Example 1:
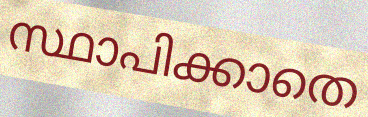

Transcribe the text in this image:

സ്ഥാപിക്കാതെ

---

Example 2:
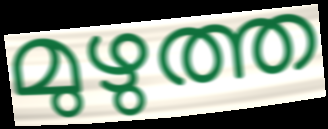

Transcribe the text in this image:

മുഴുത്ത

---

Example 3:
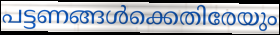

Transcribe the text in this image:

പട്ടണങ്ങൾക്കെതിരേയും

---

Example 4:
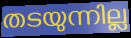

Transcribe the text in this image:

തടയുന്നില്ല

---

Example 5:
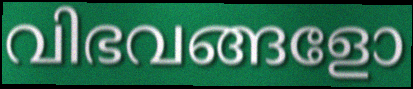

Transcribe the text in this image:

വിഭവങ്ങളോ